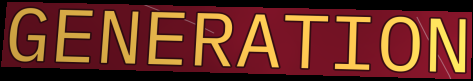
GENERATION